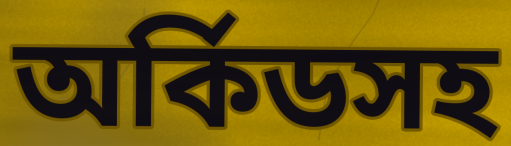
অর্কিডসহ